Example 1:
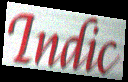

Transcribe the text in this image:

Indic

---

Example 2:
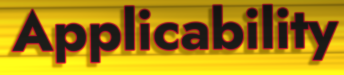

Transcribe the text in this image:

Applicability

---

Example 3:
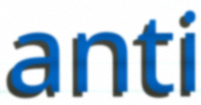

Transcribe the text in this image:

anti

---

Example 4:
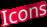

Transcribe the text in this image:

Icons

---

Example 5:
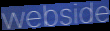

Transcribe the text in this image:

webside